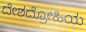
ದೇಶದ್ರೋಹಿಯ